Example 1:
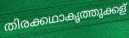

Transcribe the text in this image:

തിരക്കഥാകൃത്തുക്കള്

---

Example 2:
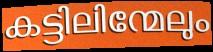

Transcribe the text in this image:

കട്ടിലിന്മേലും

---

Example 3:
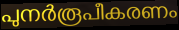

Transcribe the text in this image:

പുനർരൂപീകരണം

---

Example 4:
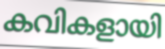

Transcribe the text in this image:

കവികളായി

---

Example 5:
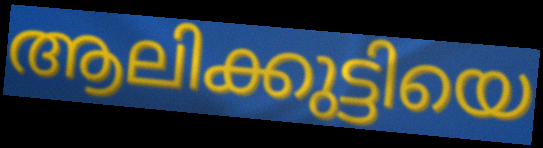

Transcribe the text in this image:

ആലിക്കുട്ടിയെ